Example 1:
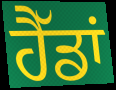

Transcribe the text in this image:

ਹੈੱਡਾਂ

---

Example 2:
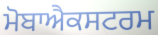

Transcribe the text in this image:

ਮੋਬਾਐਕਸਟਰਮ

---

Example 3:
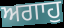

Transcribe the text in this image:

ਅਗਾਹੁ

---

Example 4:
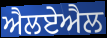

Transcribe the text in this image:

ਐਲਏਐਲ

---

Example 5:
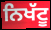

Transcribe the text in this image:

ਨਿਖੱਟੂ